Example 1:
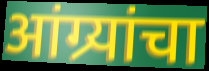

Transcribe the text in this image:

आंग्र्यांचा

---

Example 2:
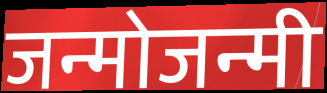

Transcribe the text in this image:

जन्मोजन्मी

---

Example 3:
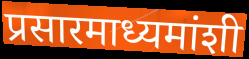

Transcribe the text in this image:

प्रसारमाध्यमांशी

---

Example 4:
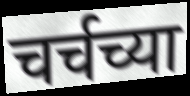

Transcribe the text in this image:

चर्चच्या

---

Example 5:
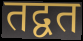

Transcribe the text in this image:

तद्वत